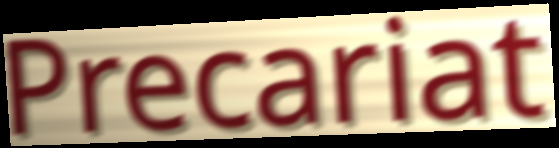
Precariat